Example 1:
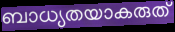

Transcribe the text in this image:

ബാധ്യതയാകരുത്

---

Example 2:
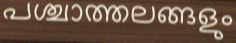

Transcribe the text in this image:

പശ്ചാത്തലങ്ങളും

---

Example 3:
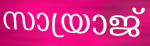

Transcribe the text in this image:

സായ്രാജ്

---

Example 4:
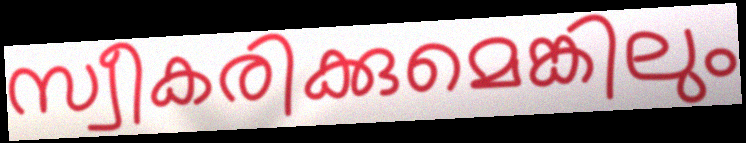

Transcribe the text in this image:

സ്വീകരിക്കുമെങ്കിലും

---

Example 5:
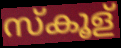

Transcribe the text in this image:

സ്കൂള്